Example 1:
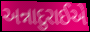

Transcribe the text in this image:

અન્નાદુરાઈએ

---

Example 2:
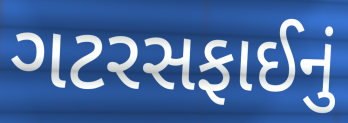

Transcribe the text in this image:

ગટરસફાઈનું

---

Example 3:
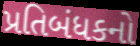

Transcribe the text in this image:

પ્રતિબંધકનો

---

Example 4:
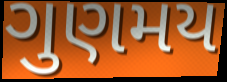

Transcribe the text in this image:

ગુણમય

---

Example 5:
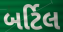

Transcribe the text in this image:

બર્ટિલ